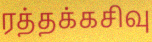
ரத்தக்கசிவு